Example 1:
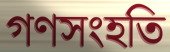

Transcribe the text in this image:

গণসংহতি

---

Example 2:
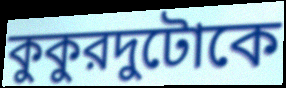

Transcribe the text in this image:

কুকুরদুটোকে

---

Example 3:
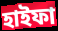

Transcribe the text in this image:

হাইফা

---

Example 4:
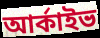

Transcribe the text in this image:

আর্কাইভ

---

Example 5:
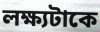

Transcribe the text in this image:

লক্ষ্যটাকে